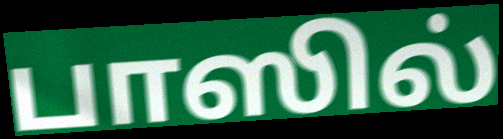
பாஸில்